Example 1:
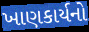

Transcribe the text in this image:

ખાણકાર્યનો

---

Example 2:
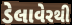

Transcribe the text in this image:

ડેલાવેરથી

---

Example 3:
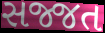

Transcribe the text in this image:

સજ્જત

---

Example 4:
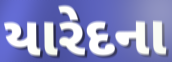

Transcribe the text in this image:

યારેદના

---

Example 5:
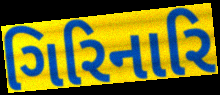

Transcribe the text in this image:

ગિરિનારિ